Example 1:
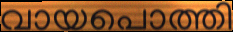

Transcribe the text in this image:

വായപൊത്തി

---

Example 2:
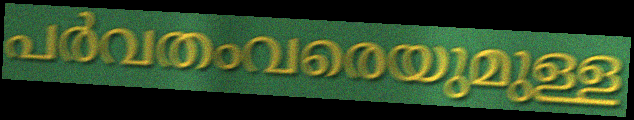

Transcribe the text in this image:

പർവതംവരെയുമുള്ള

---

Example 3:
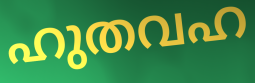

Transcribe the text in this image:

ഹുതവഹ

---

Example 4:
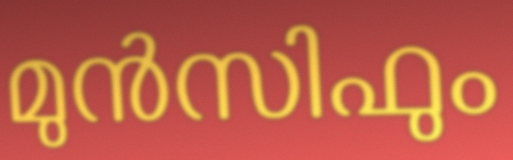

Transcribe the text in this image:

മുൻസിഫും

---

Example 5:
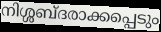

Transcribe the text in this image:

നിശ്ശബ്ദരാക്കപ്പെടും